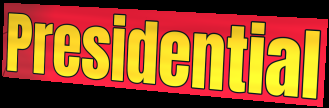
Presidential